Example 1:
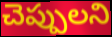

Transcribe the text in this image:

చెప్పులని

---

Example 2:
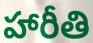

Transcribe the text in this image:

హారీతి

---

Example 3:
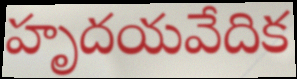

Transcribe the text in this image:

హృదయవేదిక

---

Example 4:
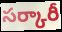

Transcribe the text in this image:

సర్కారీ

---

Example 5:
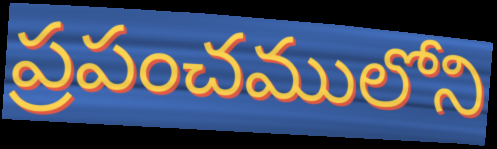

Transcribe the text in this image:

ప్రపంచములోని